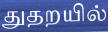
துதறயில்